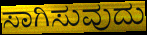
ಸಾಗಿಸುವುದು